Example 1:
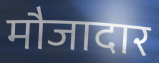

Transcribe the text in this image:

मौजादार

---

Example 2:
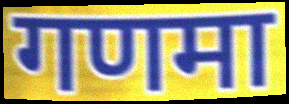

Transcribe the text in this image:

गणमा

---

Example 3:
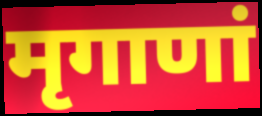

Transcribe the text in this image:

मृगाणां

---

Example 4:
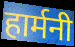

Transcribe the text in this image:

हार्मनी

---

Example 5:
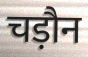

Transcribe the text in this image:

चड़ौन